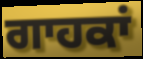
ਗਾਹਕਾਂ